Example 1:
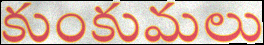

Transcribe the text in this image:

కుంకుమలు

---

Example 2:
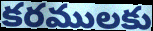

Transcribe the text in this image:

కరములకు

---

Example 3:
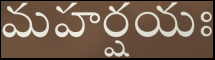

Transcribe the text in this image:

మహర్షయః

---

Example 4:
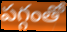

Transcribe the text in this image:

పగ్గంతో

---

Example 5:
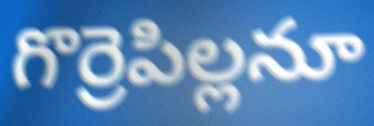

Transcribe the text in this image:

గొర్రెపిల్లనూ